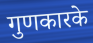
गुणकारके